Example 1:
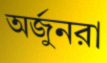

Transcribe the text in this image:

অর্জুনরা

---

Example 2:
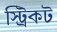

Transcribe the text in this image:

স্ট্রিকট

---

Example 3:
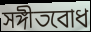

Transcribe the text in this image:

সঙ্গীতবোধ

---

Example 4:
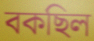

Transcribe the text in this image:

বকছিল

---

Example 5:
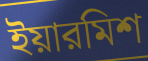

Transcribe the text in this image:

ইয়ারমিশ